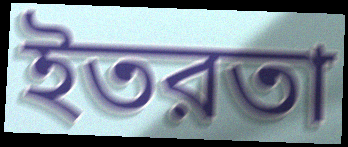
ইতরতা